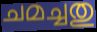
ചമച്ചതു